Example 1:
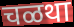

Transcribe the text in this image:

चळथा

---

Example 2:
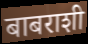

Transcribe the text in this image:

बाबराशी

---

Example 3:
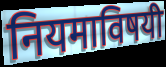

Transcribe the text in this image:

नियमाविषयी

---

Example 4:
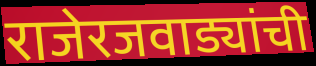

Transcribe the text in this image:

राजेरजवाड्यांची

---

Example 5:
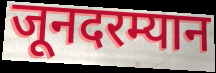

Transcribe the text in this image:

जूनदरम्यान